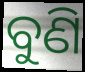
ବୁଣି